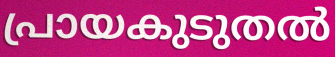
പ്രായകുടുതൽ